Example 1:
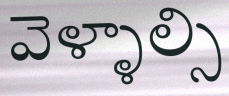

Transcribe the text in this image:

వెళ్ళాల్సి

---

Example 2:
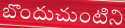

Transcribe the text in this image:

బొందుచుంటిని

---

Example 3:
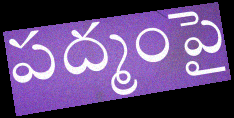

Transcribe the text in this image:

పద్మంపై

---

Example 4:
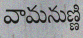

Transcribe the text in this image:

వామనుణ్ణి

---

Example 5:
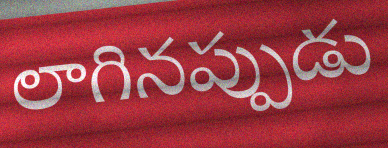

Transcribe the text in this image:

లాగినప్పుడు